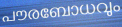
പൗരബോധവും